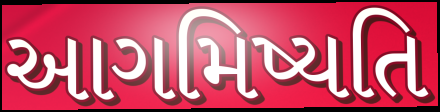
આગમિષ્યતિ